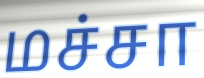
மச்சா